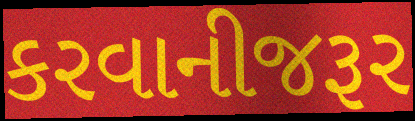
કરવાનીજરૂર